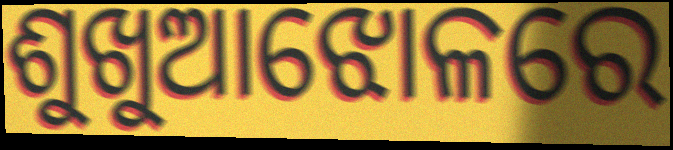
ଶୁଖୁଆଝୋଳରେ